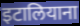
इटालियाना